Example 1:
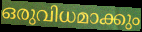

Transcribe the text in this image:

ഒരുവിധമാക്കും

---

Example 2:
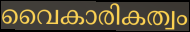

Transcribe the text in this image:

വൈകാരികത്വം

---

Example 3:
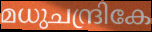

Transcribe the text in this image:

മധുചന്ദ്രികേ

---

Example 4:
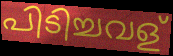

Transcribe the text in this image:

പിടിച്ചവള്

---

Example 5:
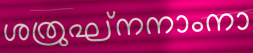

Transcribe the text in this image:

ശത്രുഘ്നനാംനാ